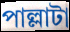
পাল্লাটা